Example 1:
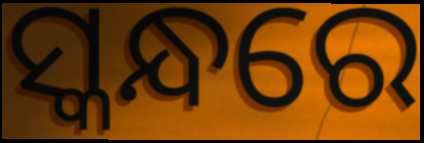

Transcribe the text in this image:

ସ୍କନ୍ଧରେ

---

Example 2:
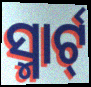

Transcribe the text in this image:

ସ୍ମାର୍ଟ୍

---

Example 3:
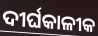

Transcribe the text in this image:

ଦୀର୍ଘକାଳୀକ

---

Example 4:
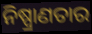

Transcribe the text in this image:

ନିଷ୍ପ୍ରାଣତାର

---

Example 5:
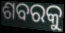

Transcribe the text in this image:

ଶବରକୁ